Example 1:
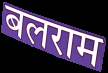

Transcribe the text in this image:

बलराम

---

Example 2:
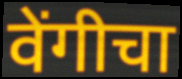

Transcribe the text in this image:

वेंगीचा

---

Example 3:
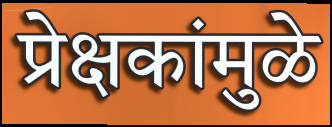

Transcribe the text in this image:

प्रेक्षकांमुळे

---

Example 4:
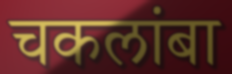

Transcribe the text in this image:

चकलांबा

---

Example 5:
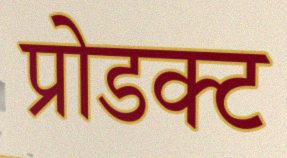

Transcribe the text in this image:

प्रोडक्ट